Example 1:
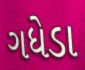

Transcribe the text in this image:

ગધેડા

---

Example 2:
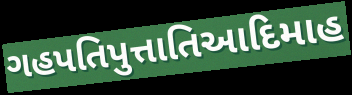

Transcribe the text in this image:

ગહપતિપુત્તાતિઆદિમાહ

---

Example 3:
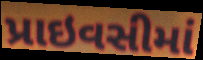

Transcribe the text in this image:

પ્રાઇવસીમાં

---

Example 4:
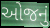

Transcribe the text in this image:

ઓજનું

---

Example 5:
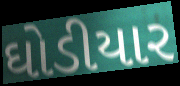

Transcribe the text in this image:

ઘોડીયાર